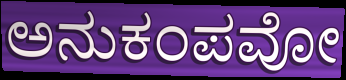
ಅನುಕಂಪವೋ